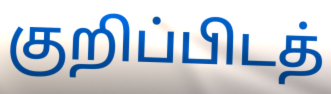
குறிப்பிடத்